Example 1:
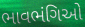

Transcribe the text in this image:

ભાવભંગિઓ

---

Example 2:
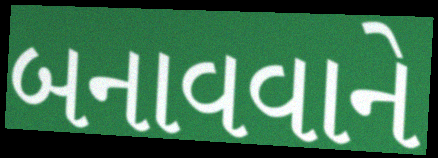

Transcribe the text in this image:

બનાવવાને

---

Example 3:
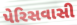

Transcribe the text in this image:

પેરિસવાસી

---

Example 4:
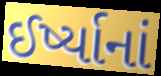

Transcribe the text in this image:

ઈર્ષ્યાનાં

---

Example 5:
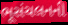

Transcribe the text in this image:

ભૂસંચલનની